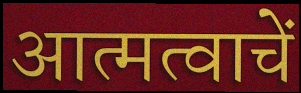
आत्मत्वाचें